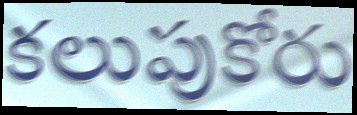
కలుపుకోరు